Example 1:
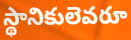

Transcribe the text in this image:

స్థానికులెవరూ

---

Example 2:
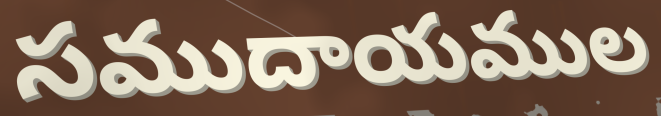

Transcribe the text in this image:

సముదాయముల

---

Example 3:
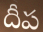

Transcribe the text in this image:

దీప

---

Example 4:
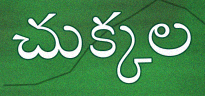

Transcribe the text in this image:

చుక్కల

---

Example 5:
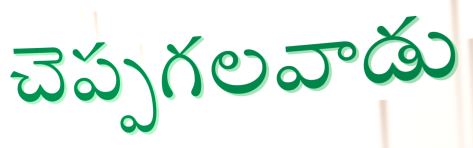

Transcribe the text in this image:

చెప్పగలవాడు